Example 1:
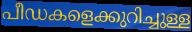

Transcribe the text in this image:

പീഡകളെക്കുറിച്ചുള്ള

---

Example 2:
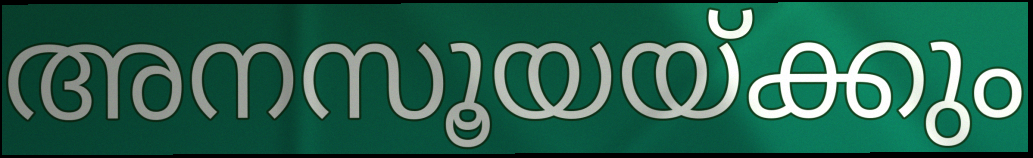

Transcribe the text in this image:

അനസൂയയ്ക്കും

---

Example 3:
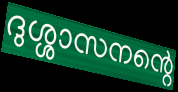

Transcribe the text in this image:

ദുശ്ശാസനന്റെ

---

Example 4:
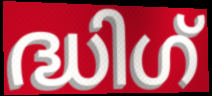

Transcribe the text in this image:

ദ്ധിഗ്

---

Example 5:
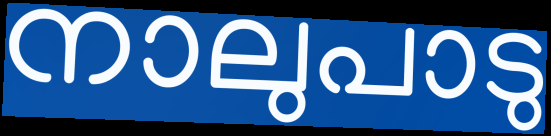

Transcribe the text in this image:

നാലുപാടു